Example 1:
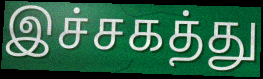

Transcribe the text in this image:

இச்சகத்து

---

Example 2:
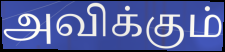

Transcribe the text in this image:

அவிக்கும்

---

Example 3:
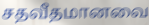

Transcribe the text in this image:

சதவீதமானவை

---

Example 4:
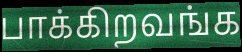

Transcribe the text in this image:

பாக்கிறவங்க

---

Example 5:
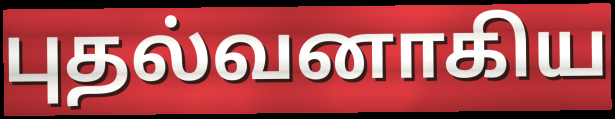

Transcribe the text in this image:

புதல்வனாகிய